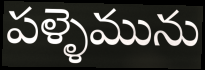
పళ్ళెమును